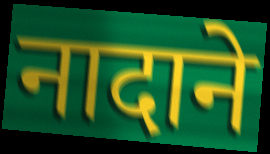
नादाने